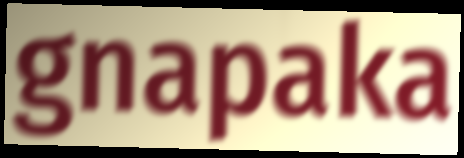
gnapaka